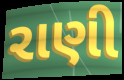
રાણી